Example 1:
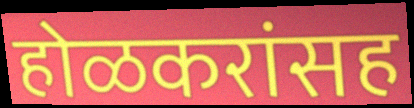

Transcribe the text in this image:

होळकरांसह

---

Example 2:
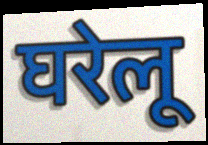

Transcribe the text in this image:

घरेलू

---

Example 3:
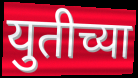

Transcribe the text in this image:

युतीच्या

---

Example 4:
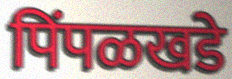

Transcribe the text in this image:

पिंपळखडे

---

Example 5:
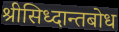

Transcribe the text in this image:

श्रीसिध्दान्तबोध